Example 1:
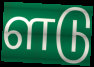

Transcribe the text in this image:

ளடு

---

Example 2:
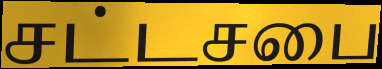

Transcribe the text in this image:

சட்டசபை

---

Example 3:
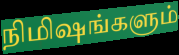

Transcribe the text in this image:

நிமிஷங்களும்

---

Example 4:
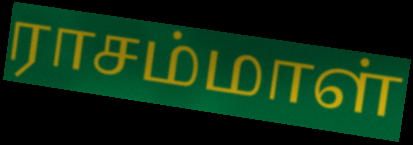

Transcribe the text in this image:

ராசம்மாள்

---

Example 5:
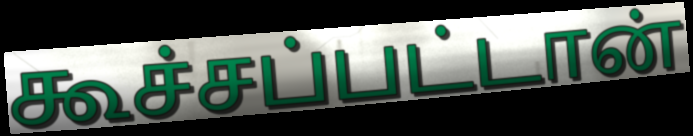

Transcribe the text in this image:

கூச்சப்பட்டான்